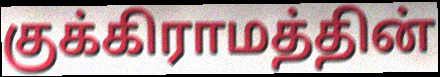
குக்கிராமத்தின்